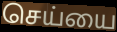
செய்யை